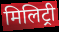
मिलिट्री